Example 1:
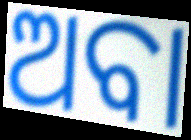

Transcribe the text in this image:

ଅବା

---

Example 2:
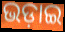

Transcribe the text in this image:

ଭଡ଼ାଇ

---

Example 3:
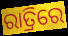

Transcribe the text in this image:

ରାତ୍ରିରେ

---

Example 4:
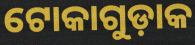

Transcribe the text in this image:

ଟୋକାଗୁଡ଼ାକ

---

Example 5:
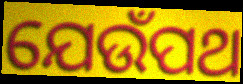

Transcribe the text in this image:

ଯେଉଁପଥ